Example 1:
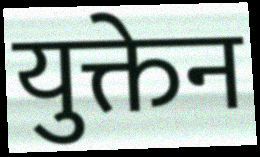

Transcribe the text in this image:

युक्तेन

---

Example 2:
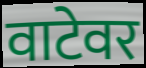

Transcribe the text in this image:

वाटेवर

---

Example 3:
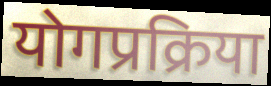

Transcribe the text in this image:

योगप्रक्रिया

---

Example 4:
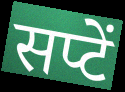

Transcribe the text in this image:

सप्टें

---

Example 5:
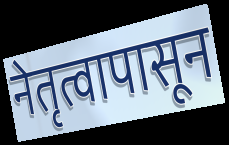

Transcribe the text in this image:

नेतृत्वापासून